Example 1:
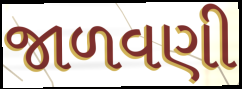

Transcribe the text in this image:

જાળવણી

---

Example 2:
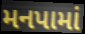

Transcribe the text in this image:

મનપામાં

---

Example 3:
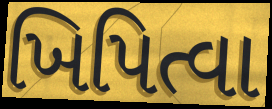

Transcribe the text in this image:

ખિપિત્વા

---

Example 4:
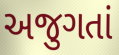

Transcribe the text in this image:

અજુગતાં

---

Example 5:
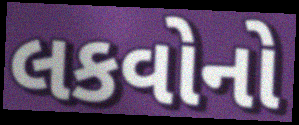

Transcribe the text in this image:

લકવોનો